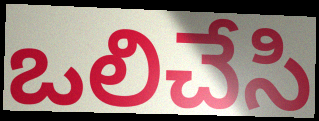
ఒలిచేసి